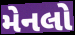
મેનલો